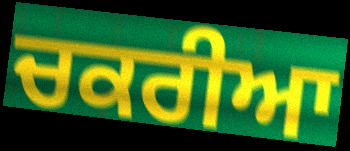
ਚਕਰੀਆ